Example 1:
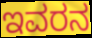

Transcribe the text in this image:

ಇವರನ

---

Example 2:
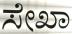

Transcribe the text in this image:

ಸೇಖಾ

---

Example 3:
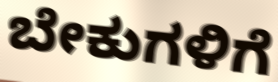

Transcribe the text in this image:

ಬೇಕುಗಳಿಗೆ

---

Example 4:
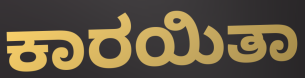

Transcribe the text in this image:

ಕಾರಯಿತಾ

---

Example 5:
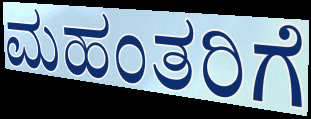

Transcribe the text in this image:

ಮಹಂತರಿಗೆ